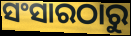
ସଂସାରଠାରୁ